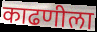
काढणीला